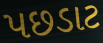
પછડાટ